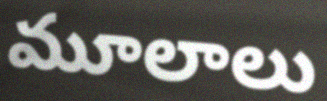
మూలాలు